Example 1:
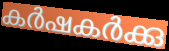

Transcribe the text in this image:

കർഷകർക്കു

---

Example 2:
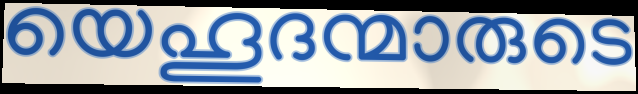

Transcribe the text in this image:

യെഹൂദന്മാരുടെ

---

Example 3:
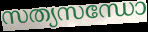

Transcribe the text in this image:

സത്യസന്ധോ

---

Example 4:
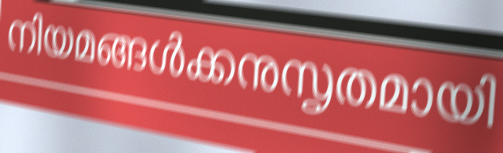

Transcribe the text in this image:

നിയമങ്ങൾക്കനുസൃതമായി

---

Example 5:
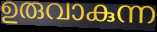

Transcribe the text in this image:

ഉരുവാകുന്ന